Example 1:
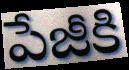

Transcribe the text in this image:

పేజీకి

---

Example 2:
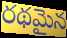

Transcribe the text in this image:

రథమైన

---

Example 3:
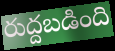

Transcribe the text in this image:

రుద్దబడింది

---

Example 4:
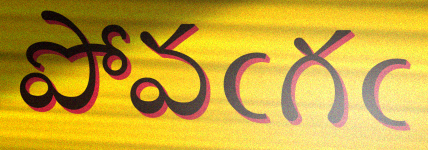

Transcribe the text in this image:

పోవఁగఁ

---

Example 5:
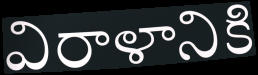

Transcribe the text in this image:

విరాళానికి